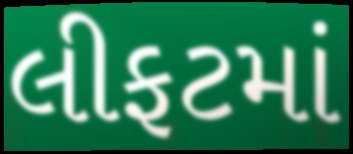
લીફટમાં